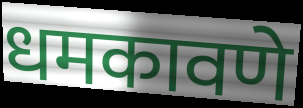
धमकावणे